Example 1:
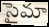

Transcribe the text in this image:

సైమా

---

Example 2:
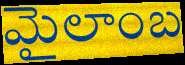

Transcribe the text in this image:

మైలాంబ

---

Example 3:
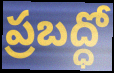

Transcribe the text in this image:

ప్రబద్ధో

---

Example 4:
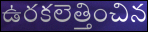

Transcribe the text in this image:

ఉరకలెత్తించిన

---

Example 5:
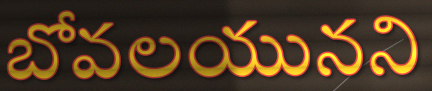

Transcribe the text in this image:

బోవలయునని